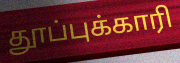
தூப்புக்காரி